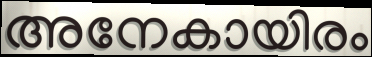
അനേകായിരം